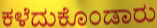
ಕಳೆದುಕೊಂಡಾರು